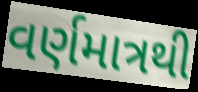
વર્ણમાત્રથી